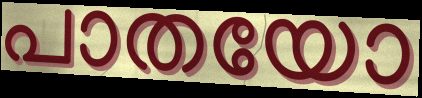
പാതയോ